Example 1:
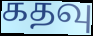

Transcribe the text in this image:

கதவு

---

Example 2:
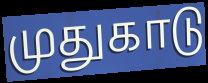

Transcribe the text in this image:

முதுகாடு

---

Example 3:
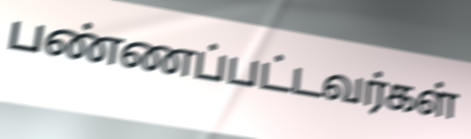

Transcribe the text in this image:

பண்ணப்பட்டவர்கள்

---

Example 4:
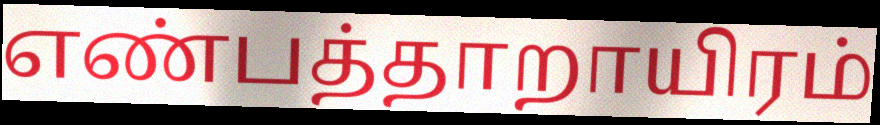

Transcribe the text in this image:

எண்பத்தாறாயிரம்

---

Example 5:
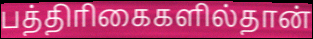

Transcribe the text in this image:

பத்திரிகைகளில்தான்